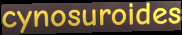
cynosuroides